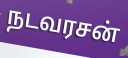
நடவரசன்